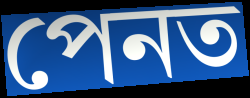
পেনত